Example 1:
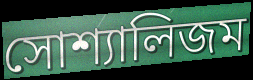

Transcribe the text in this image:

সোশ্যালিজম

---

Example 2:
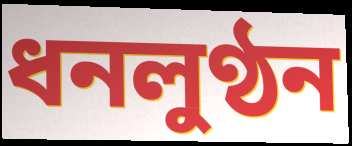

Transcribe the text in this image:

ধনলুণ্ঠন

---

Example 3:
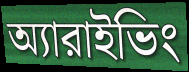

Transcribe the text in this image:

অ্যারাইভিং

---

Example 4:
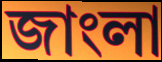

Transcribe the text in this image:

জাংলা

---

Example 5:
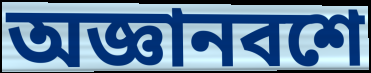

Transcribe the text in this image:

অজ্ঞানবশে